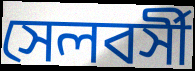
সেলবর্সী